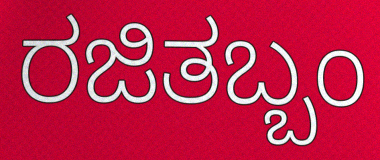
ರಜಿತಬ್ಬಂ